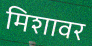
मिशावर